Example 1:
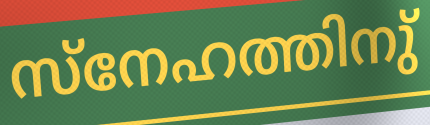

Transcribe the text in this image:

സ്നേഹത്തിനു്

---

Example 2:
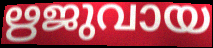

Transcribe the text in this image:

ഋജുവായ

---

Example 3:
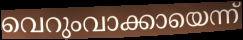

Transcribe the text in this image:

വെറുംവാക്കായെന്ന്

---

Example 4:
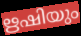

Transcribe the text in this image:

ഋഷിയും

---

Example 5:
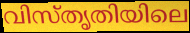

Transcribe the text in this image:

വിസ്തൃതിയിലെ